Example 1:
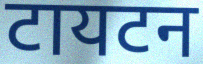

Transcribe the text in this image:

टायटन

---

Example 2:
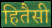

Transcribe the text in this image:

हितैसी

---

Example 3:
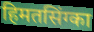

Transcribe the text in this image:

हिमतसिंग्का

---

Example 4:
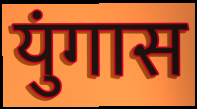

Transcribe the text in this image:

युंगास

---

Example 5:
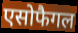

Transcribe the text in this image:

एसोफैगल